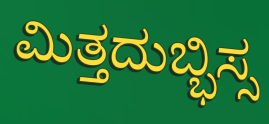
ಮಿತ್ತದುಬ್ಭಿಸ್ಸ